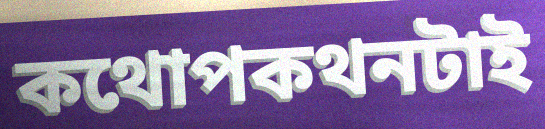
কথোপকথনটাই